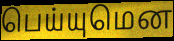
பெய்யுமென